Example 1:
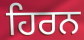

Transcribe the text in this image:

ਹਿਰਨ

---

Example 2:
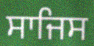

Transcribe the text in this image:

ਸਾਜਿਸ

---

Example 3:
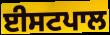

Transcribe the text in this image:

ਈਸਟਪਾਲ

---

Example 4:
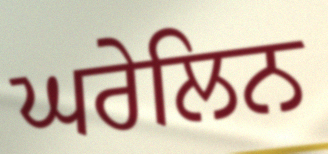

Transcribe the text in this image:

ਘਰੇਲਿਨ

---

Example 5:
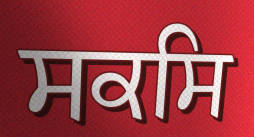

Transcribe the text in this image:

ਸਕਸਿ